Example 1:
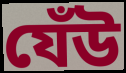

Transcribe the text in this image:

যেঁউ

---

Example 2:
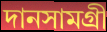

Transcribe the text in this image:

দানসামগ্রী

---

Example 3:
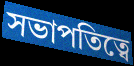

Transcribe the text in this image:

সভাপতিত্বে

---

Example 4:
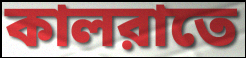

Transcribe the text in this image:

কালরাতে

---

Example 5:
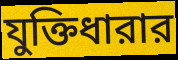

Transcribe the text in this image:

যুক্তিধারার